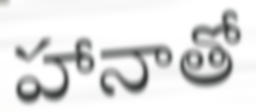
హానాతో